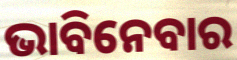
ଭାବିନେବାର